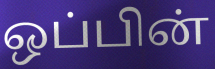
ஒப்பின்